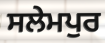
ਸਲੇਮਪੁਰ